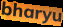
bharyu